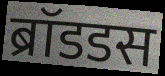
ब्रॉडडस